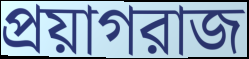
প্রয়াগরাজ